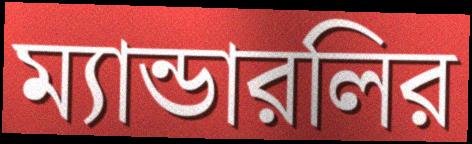
ম্যান্ডারলির